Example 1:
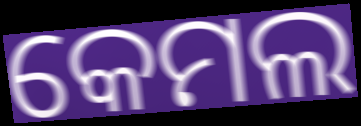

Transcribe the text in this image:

କେମଲ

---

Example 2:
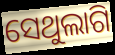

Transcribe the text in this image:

ସେଥୁଲାଗି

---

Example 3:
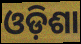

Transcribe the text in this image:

ଓଡ଼ିଶା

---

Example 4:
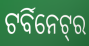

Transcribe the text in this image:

ଟର୍ବିନେଟ୍‌ର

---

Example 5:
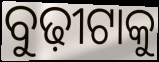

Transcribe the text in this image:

ବୁଢ଼ୀଟାକୁ